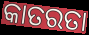
କାତରତା